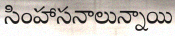
సింహాసనాలున్నాయి